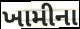
ખામીના